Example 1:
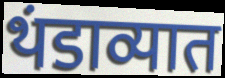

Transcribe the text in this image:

थंडाव्यात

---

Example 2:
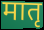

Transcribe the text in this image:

मातृ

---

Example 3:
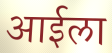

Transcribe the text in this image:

आईला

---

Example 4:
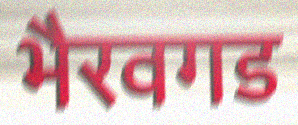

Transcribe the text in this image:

भैरवगड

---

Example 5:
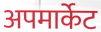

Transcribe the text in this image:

अपमार्केट